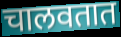
चालवतात